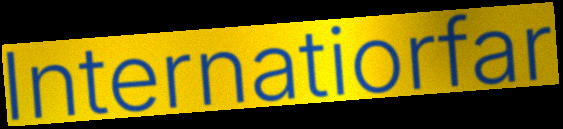
Internatiorfar